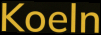
Koeln